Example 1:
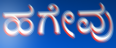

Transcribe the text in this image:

ಹಗೇವು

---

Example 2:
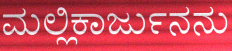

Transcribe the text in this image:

ಮಲ್ಲಿಕಾರ್ಜುನನು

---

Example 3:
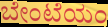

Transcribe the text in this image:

ಬೇಂಟೆಯಂ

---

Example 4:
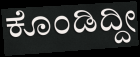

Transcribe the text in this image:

ಕೊಂಡಿದ್ದೀ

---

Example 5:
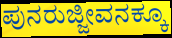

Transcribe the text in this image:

ಪುನರುಜ್ಜೀವನಕ್ಕೂ